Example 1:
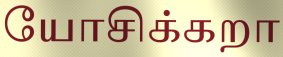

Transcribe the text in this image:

யோசிக்கறா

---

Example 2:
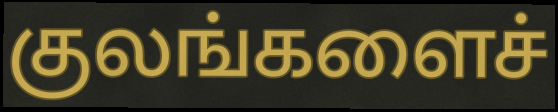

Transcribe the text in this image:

குலங்களைச்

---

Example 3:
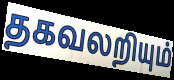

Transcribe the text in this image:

தகவலறியும்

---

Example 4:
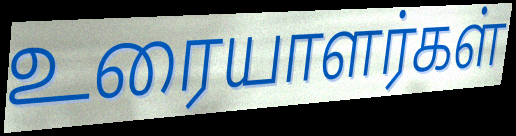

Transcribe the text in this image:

உரையாளர்கள்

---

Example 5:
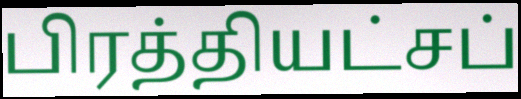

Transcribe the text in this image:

பிரத்தியட்சப்